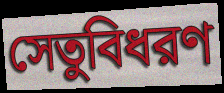
সেতুবিধরণ